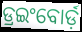
ଡ୍ରଇଂବୋର୍ଡ଼